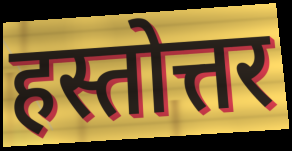
हस्तोत्तर